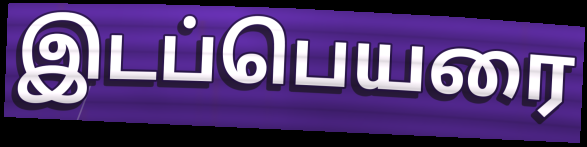
இடப்பெயரை